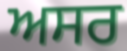
ਅਸਰ